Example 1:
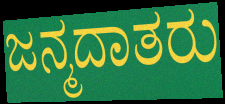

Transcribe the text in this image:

ಜನ್ಮದಾತರು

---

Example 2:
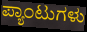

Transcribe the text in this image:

ಪ್ಯಾಂಟುಗಳು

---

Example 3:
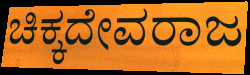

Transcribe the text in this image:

ಚಿಕ್ಕದೇವರಾಜ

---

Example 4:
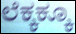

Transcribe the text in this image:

ಲೆಕ್ಕಕ್ಕೂ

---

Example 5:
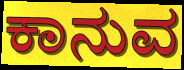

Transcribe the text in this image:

ಕಾನುವ